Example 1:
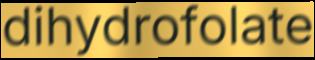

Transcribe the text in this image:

dihydrofolate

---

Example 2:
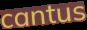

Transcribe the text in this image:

cantus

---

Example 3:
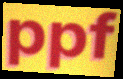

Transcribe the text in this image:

ppf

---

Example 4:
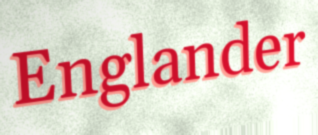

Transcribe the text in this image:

Englander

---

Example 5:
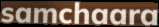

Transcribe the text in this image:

samchaara